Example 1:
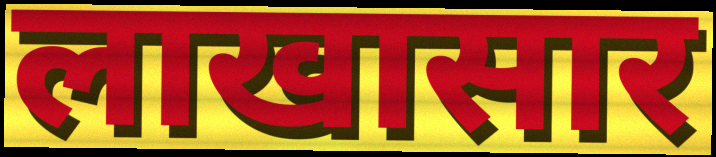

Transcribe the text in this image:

लाखासार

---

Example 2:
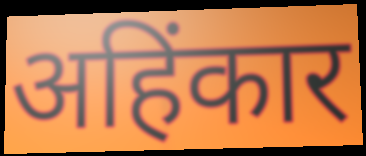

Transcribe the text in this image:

अहिंकार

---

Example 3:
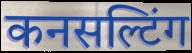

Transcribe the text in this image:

कनसल्टिंग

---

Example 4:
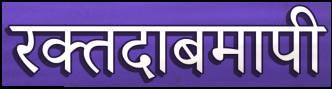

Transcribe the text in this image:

रक्तदाबमापी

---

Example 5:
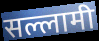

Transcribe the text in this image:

सल्लामी